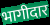
भागीदार